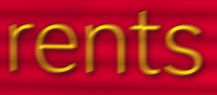
rents